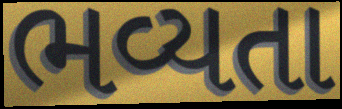
ભવ્યતા